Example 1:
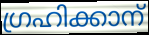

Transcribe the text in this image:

ഗ്രഹിക്കാന്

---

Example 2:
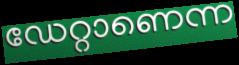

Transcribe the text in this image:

ഡേറ്റാണെന്ന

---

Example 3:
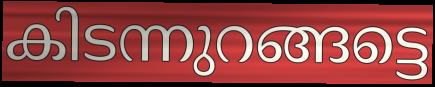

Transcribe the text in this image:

കിടന്നുറങ്ങട്ടെ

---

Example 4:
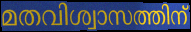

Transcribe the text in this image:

മതവിശ്വാസത്തിന്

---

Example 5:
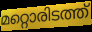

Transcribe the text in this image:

മറ്റൊരിടത്ത്